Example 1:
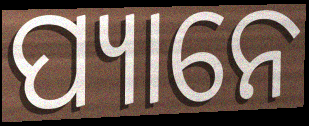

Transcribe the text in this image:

ପ୍ୟାନେ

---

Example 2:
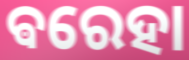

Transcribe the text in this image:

ଵରେହା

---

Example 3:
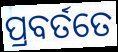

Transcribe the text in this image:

ପ୍ରବର୍ତତେ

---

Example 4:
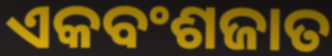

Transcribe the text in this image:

ଏକବଂଶଜାତ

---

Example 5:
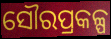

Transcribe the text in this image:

ସୌରପ୍ରକଳ୍ପ